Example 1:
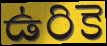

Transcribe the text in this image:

ఉరికె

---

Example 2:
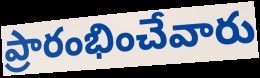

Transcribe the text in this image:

ప్రారంభించేవారు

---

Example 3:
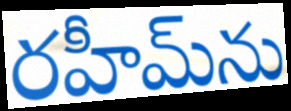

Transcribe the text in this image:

రహీమ్‌ను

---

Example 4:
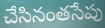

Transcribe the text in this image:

చేసినంతసేపు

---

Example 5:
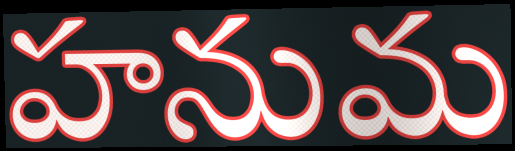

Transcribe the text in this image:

హనుమ